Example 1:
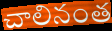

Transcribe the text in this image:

చాలినంత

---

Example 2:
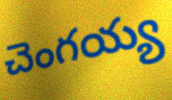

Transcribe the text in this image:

చెంగయ్య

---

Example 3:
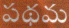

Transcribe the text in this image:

పథమ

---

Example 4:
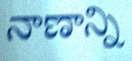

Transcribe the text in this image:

నాణాన్ని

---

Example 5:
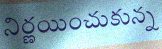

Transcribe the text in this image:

నిర్ణయించుకున్న